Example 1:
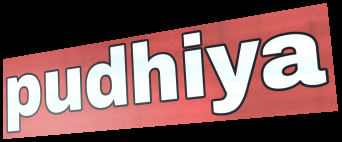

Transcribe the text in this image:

pudhiya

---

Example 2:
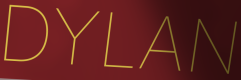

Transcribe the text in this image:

DYLAN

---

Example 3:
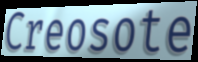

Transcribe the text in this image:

Creosote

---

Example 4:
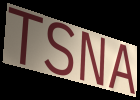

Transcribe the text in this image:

TSNA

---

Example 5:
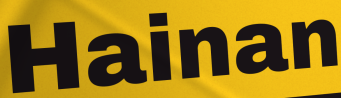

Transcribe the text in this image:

Hainan